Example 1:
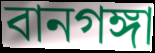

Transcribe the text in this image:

বানগঙ্গা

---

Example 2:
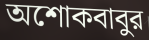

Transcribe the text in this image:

অশোকবাবুর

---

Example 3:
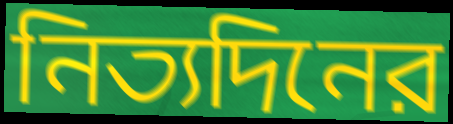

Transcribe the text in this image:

নিত্যদিনের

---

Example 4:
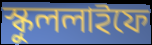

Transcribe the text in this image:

স্কুললাইফে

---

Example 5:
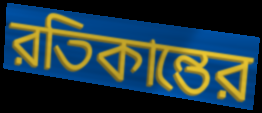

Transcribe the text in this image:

রতিকান্তের